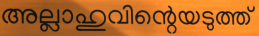
അല്ലാഹുവിന്റെയടുത്ത്